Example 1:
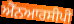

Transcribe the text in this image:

ਐੱਨਆਰਸੀਪੀ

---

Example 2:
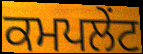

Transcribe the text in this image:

ਕਮਪਲੇਂਟ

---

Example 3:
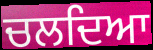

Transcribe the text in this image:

ਚਲਦਿਆ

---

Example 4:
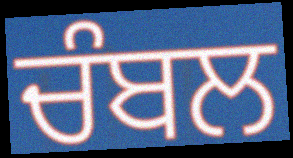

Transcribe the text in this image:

ਚੰਬਲ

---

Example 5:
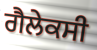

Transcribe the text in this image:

ਗੈਲੇਕਸੀ